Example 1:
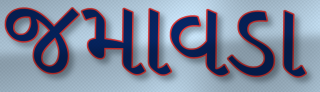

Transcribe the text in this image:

જમાવડા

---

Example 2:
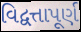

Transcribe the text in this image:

વિદ્વત્તાપૂર્ણ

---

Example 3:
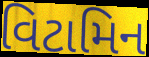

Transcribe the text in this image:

વિટામિન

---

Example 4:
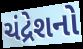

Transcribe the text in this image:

ચંદ્રેશનો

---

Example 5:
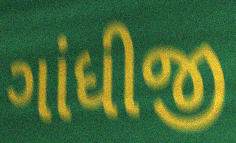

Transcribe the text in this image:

ગાંધીજી